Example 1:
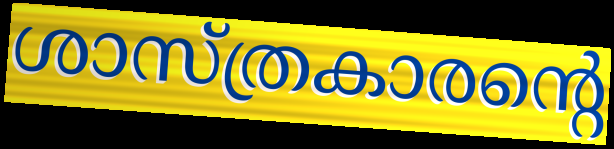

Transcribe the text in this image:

ശാസ്ത്രകാരന്റെ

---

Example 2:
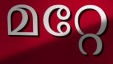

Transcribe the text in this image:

മറ്റേ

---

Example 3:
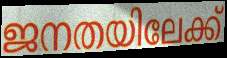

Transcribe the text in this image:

ജനതയിലേക്ക്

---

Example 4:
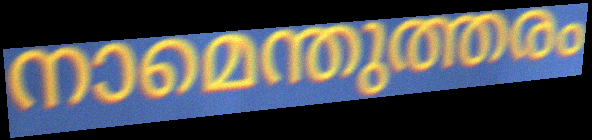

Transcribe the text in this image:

നാമെന്തുത്തരം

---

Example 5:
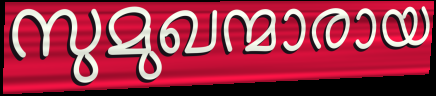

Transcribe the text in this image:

സുമുഖന്മാരായ